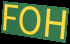
FOH